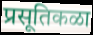
प्रसूतिकळा